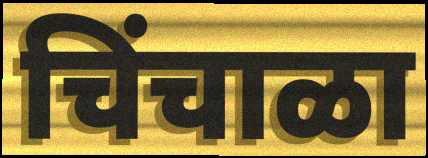
चिंचाळा